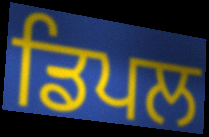
ਡਿਪਲ